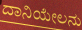
ದಾನಿಯೇಲನು